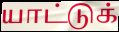
யாட்டுக்